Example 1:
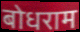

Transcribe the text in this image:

बोधराम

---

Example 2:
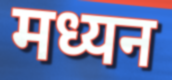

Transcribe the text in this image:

मध्यन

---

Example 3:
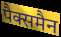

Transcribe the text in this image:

पैक्समैन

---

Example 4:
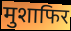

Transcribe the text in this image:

मुशाफिर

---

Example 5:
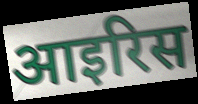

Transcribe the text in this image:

आइरिस